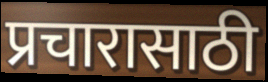
प्रचारासाठी